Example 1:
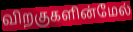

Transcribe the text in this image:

விறகுகளின்மேல்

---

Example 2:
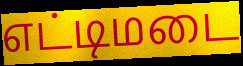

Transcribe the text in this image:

எட்டிமடை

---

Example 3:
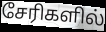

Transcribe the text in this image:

சேரிகளில்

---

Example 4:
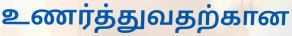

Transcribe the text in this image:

உணர்த்துவதற்கான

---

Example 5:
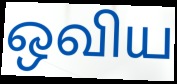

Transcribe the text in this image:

ஒவிய